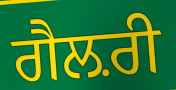
ਗੈਲ਼ਰੀ